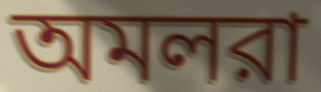
অমলরা